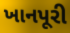
ખાનપૂરી